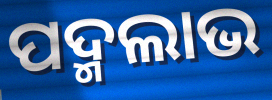
ପଦ୍ମଲାଭ